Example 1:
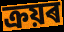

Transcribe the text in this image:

ক্ৰয়ৰ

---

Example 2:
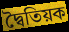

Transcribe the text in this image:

দ্বৈতিয়ক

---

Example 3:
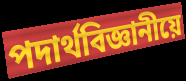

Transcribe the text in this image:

পদাৰ্থবিজ্ঞানীয়ে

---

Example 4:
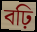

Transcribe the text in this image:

বঢ়ি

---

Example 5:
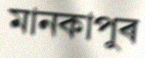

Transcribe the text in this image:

মানকাপুৰ